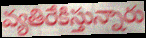
వ్యతిరేకిస్తున్నారు